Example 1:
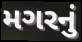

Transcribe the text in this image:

મગરનું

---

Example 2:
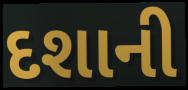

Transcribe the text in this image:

દશાની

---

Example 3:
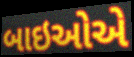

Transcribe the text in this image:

બાઇઓએ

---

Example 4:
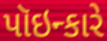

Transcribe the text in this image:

પૉઇન્કારે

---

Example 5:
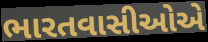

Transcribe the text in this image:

ભારતવાસીઓએ